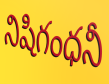
నిషిగంధనీ